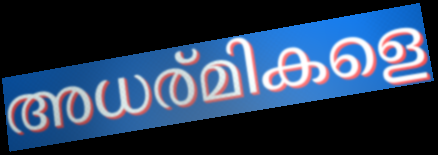
അധര്മികളെ